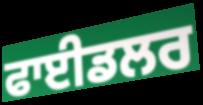
ਫਾਈਡਲਰ